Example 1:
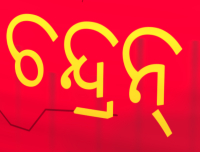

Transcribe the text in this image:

ଚନ୍ଦ୍ରନ୍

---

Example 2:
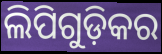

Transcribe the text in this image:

ଲିପିଗୁଡ଼ିକର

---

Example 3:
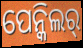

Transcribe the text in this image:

ପେନ୍କିଲର୍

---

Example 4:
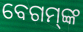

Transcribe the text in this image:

ବେଗମ୍‌ଙ୍କ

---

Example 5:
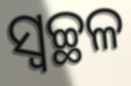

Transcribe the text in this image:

ସ୍ବଚ୍ଛଳ